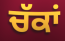
ਚੱਕਾਂ